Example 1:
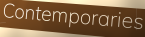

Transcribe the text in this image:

Contemporaries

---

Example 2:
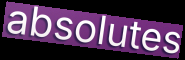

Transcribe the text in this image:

absolutes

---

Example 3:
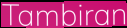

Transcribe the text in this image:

Tambiran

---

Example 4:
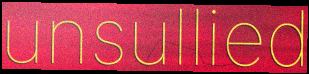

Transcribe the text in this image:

unsullied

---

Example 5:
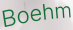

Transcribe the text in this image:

Boehm